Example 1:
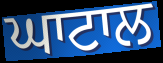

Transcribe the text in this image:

ਘਾਟਾਲ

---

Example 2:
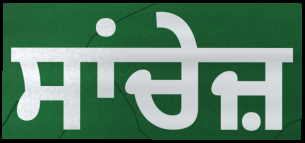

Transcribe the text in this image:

ਸਾਂਚੇਜ਼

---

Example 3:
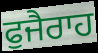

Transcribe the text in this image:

ਫੁਜੈਰਾਹ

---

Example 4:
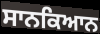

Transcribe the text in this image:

ਸਾਨਕਿਆਨ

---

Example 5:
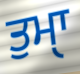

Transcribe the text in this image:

ਤੁਮਾੑ